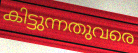
കിട്ടുന്നതുവരെ